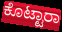
ಕೊಟ್ಟಾರಾ